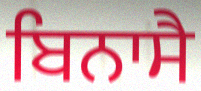
ਬਿਨਾਸੈ